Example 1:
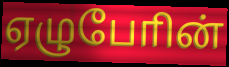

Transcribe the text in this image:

ஏழுபேரின்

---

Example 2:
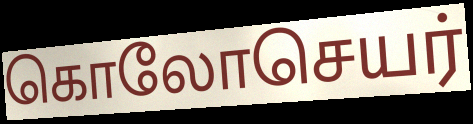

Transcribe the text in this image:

கொலோசெயர்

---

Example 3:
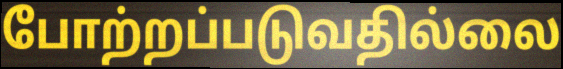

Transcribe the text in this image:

போற்றப்படுவதில்லை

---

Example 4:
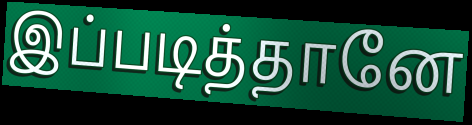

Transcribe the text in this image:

இப்படித்தானே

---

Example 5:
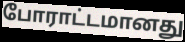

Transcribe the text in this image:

போராட்டமானது